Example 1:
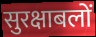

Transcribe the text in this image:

सुरक्षाबलों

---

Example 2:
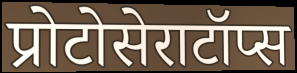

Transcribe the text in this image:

प्रोटोसेराटॉप्स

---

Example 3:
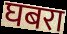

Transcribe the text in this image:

घबरा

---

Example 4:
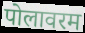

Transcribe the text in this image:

पोलावरम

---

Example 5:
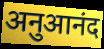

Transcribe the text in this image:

अनुआनंद